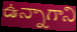
ఉన్నాగాని